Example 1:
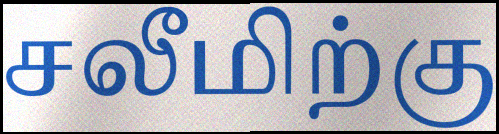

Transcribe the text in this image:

சலீமிற்கு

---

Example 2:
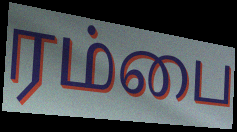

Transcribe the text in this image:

ரம்பை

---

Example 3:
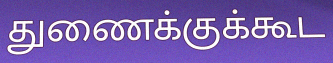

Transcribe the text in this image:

துணைக்குக்கூட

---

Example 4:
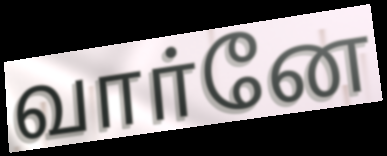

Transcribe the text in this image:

வார்னே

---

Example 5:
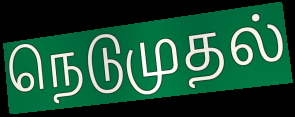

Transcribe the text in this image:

நெடுமுதல்